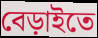
বেড়াইতে